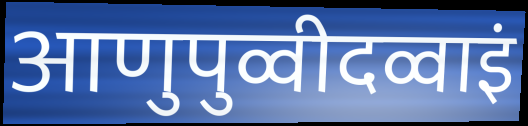
आणुपुव्वीदव्वाइं